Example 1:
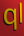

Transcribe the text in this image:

ql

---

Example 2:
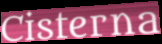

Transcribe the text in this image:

Cisterna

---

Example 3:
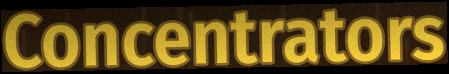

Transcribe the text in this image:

Concentrators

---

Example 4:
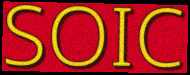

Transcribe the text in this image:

SOIC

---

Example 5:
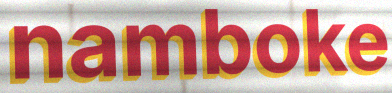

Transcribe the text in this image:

namboke